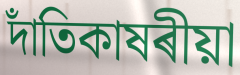
দাঁতিকাষৰীয়া